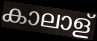
കാലാള്